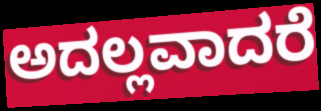
ಅದಲ್ಲವಾದರೆ